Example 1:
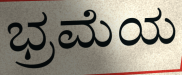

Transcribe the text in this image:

ಭ್ರಮೆಯ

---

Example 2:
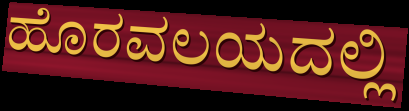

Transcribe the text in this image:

ಹೊರವಲಯದಲ್ಲಿ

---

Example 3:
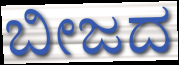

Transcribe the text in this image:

ಬೀಜದ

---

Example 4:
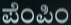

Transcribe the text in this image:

ಪೆಂಪಿಂ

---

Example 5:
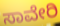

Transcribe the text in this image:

ಸಾವೇರಿ